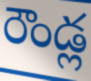
రౌండ్ల